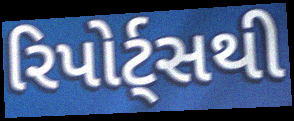
રિપોર્ટ્સથી